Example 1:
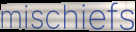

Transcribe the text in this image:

mischiefs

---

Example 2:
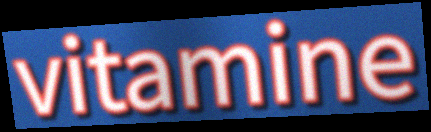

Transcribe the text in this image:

vitamine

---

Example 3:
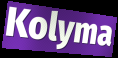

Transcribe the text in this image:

Kolyma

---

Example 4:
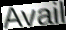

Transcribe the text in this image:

Avail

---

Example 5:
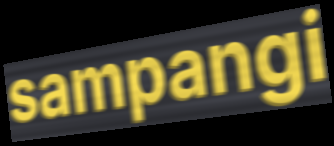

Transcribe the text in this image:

sampangi